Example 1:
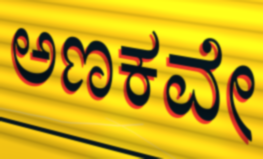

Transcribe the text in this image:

ಅಣಕವೇ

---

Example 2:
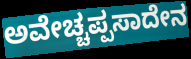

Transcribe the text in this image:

ಅವೇಚ್ಚಪ್ಪಸಾದೇನ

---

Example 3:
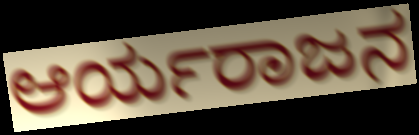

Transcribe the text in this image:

ಆರ್ಯರಾಜನ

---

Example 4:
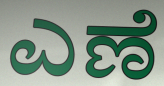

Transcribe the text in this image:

ಎಣೆ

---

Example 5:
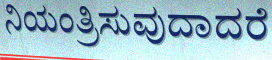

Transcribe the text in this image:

ನಿಯಂತ್ರಿಸುವುದಾದರೆ